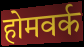
होमवर्क